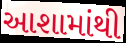
આશામાંથી